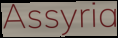
Assyria